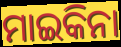
ମାଇକିନା